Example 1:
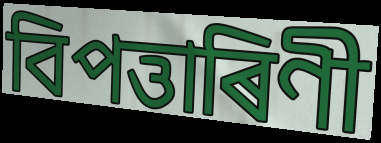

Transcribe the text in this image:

বিপত্তাৰিণী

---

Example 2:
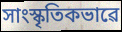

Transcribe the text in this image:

সাংস্কৃতিকভাৱে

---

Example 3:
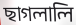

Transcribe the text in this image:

ছাগলালি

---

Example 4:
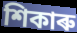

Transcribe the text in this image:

শিকাৰু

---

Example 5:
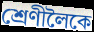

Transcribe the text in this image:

শ্ৰেণীলৈকে